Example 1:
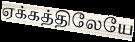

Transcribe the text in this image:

ஏக்கத்திலேயே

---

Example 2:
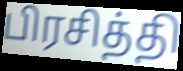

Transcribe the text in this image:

பிரசித்தி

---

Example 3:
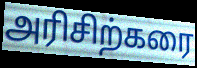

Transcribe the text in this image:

அரிசிற்கரை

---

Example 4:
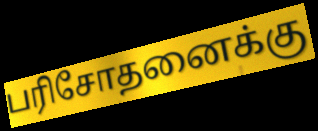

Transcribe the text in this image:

பரிசோதனைக்கு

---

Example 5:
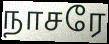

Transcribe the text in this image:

நாசரே